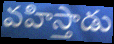
వహిస్తాడు